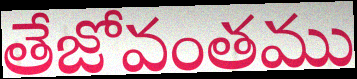
తేజోవంతము